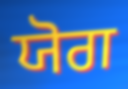
ਯੋਗ